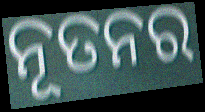
ନୂତନର